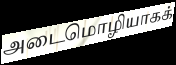
அடைமொழியாகக்